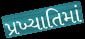
પ્રખ્યાતિમાં